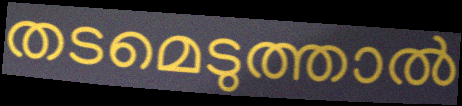
തടമെടുത്താൽ